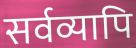
सर्वव्यापि